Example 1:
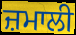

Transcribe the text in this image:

ਜ਼ਮਾਲੀ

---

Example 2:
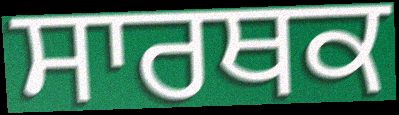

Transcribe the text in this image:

ਸਾਰਥਕ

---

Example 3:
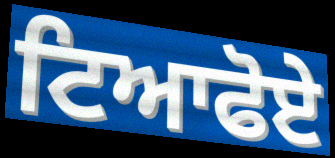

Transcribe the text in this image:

ਟਿਆਫੋਏ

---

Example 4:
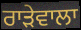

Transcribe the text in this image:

ਰਾੜੇਵਾਲਾ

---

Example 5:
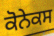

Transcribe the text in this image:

ਕੋਨੇਕਸ